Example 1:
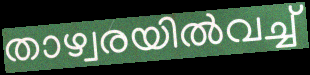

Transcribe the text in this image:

താഴ്വരയിൽവച്ച്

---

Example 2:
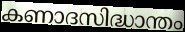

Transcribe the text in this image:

കണാദസിദ്ധാന്തം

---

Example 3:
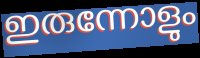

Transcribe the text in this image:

ഇരുന്നോളും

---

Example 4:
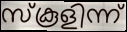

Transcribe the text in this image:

സ്കൂളിന്ന്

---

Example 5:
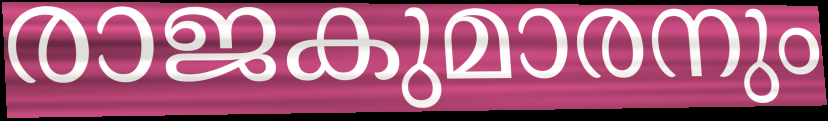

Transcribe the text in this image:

രാജകുമാരനും